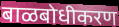
बाळबोधीकरण